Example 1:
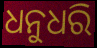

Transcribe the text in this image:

ଧନୁଧରି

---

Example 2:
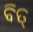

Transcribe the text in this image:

ବିତ୍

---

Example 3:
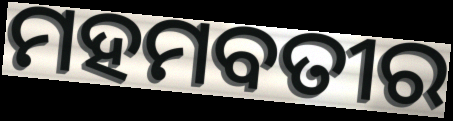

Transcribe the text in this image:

ମହମବତୀର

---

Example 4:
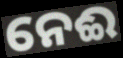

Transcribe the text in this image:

ନେଈ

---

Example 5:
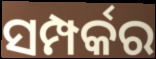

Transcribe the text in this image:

ସମ୍ପର୍କର